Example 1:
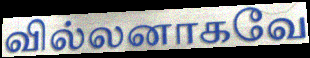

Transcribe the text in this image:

வில்லனாகவே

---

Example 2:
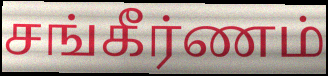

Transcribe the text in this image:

சங்கீர்ணம்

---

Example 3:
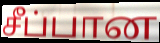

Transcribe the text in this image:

சீப்பான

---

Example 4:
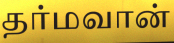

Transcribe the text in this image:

தர்மவான்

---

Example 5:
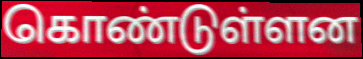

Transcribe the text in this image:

கொண்டுள்ளன